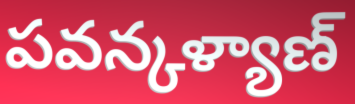
పవన్కళ్యాణ్